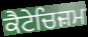
ਕੈਟੇਚਿਜ਼ਮ